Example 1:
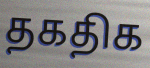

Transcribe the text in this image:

தகதிக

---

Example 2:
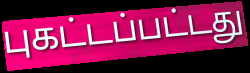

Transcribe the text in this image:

புகட்டப்பட்டது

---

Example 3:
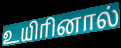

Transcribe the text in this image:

உயிரினால்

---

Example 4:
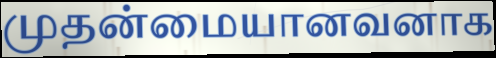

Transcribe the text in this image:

முதன்மையானவனாக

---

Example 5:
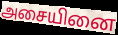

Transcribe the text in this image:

அசையினை